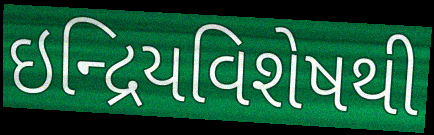
ઇન્દ્રિયવિશેષથી